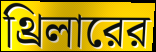
থ্রিলারের